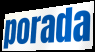
porada